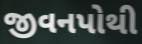
જીવનપોથી